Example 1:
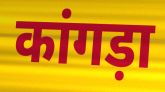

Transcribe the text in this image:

कांगड़ा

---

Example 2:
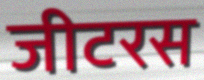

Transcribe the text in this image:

जीटरस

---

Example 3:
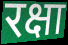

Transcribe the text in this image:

रक्षा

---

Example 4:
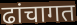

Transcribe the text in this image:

ढांचागत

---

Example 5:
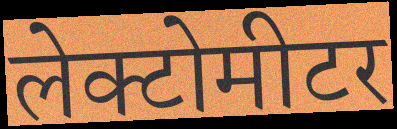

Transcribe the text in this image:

लेक्टोमीटर